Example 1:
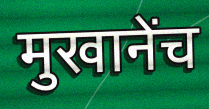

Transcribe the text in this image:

मुखानेंच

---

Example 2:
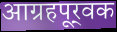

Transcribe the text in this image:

आग्रहपूर्वक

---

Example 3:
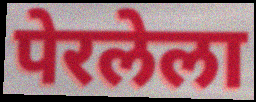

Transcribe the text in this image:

पेरलेला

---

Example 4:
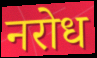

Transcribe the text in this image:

नरोध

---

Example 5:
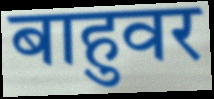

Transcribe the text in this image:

बाहुवर